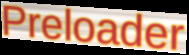
Preloader